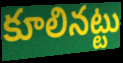
కూలినట్టు